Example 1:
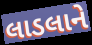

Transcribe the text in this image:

લાડલાને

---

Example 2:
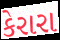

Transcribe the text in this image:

કેરારા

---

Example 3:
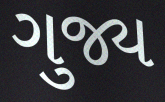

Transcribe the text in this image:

ગુજ્ય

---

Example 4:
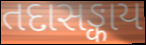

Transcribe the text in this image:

તદાસઙ્કાય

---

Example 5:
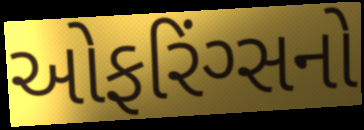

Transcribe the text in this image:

ઓફરિંગ્સનો